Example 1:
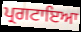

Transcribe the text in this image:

ਪ੍ਰਗਟਾਇਆ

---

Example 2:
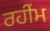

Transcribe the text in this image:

ਰਹੀਂਮ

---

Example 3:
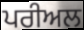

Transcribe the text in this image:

ਪਰੀਅਲ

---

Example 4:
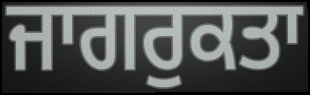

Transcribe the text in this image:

ਜਾਗਰੁਕਤਾ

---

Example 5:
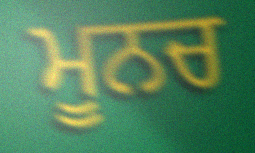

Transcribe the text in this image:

ਮੂਨਚ